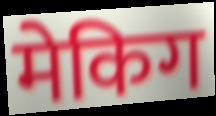
मेकिग